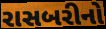
રાસબરીનો